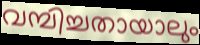
വമ്പിച്ചതായാലും